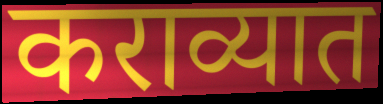
कराव्यात